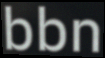
bbn